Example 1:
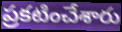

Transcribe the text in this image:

ప్రకటించేశారు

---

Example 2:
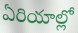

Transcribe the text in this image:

ఏరియాల్లో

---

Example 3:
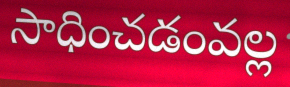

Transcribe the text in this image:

సాధించడంవల్ల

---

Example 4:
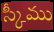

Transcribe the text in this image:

స్కీము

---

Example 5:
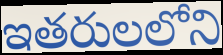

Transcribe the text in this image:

ఇతరులలోని